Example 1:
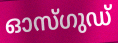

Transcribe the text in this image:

ഓസ്ഗുഡ്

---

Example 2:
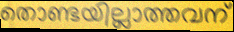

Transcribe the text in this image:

തൊണ്ടയില്ലാത്തവന്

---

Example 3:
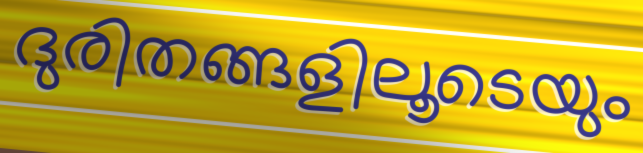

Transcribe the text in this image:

ദുരിതങ്ങളിലൂടെയും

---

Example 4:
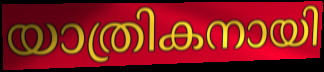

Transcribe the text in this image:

യാത്രികനായി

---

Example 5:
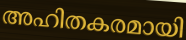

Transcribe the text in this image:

അഹിതകരമായി